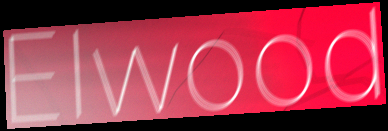
Elwood